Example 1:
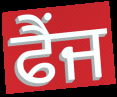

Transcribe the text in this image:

ਫੈਂਜ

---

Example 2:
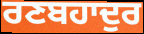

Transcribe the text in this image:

ਰਣਬਹਾਦੁਰ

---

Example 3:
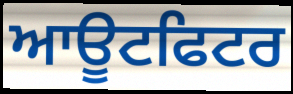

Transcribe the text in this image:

ਆਊਟਫਿਟਰ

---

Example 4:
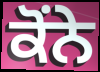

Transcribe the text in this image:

ਕੋਂਨੇ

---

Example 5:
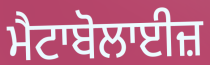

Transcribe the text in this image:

ਮੈਟਾਬੋਲਾਈਜ਼